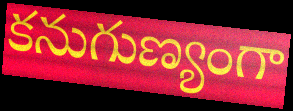
కనుగుణ్యంగా